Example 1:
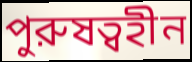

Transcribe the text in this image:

পুরুষত্বহীন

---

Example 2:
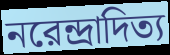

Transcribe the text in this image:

নরেন্দ্রাদিত্য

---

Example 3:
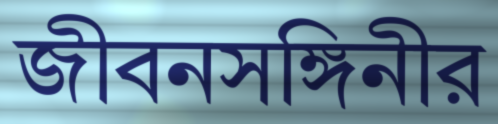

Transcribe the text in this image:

জীবনসঙ্গিনীর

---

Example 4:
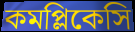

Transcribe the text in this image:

কমপ্লিকেসি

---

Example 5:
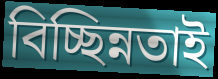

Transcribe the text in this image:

বিচ্ছিন্নতাই